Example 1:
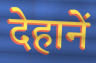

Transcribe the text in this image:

देहानें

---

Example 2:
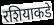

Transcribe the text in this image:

रशियाकडे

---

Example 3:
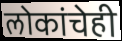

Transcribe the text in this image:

लोकांचेही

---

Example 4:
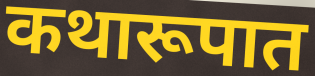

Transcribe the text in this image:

कथारूपात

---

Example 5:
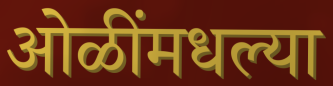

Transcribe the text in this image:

ओळींमधल्या